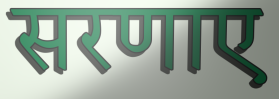
सरणाए